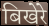
बिखेरे